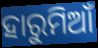
ହାରୁମିଆଁ